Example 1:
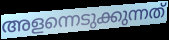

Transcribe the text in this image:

അളന്നെടുക്കുന്നത്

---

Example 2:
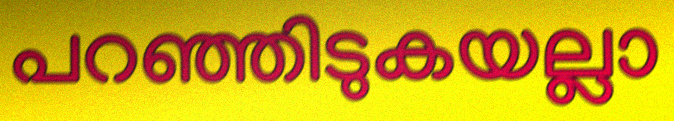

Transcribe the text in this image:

പറഞ്ഞിടുകയല്ലാ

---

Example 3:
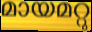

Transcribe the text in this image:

മായമറ്റു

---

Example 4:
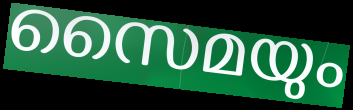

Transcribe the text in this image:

സൈമയും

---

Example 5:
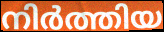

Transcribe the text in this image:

നിർത്തിയ